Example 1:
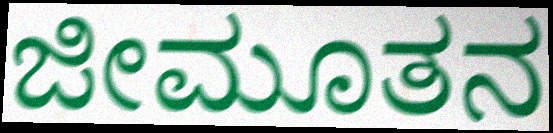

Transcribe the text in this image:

ಜೀಮೂತನ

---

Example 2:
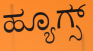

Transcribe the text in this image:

ಹ್ಯೂಗ್ಸ್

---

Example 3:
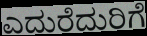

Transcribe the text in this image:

ಎದುರೆದುರಿಗೆ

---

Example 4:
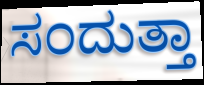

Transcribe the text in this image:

ಸಂದುತ್ತಾ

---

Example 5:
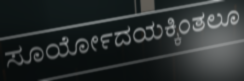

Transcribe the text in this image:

ಸೂರ್ಯೋದಯಕ್ಕಿಂತಲೂ